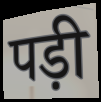
पड़ी